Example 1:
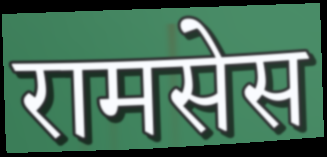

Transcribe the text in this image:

रामसेस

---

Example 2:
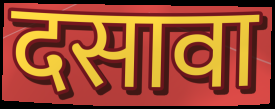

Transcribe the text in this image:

दसावा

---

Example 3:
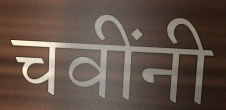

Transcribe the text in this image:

चवींनी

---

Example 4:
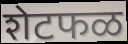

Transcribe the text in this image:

शेटफळ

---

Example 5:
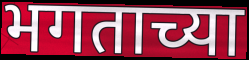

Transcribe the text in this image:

भगताच्या